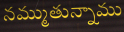
నమ్ముతున్నాము